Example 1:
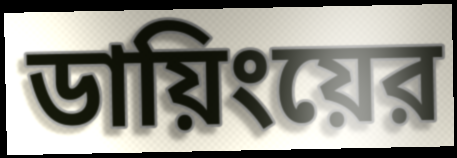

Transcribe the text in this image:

ডায়িংয়ের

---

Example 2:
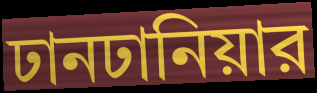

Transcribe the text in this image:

ঢানঢানিয়ার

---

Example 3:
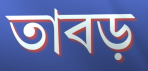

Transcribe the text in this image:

তাবড়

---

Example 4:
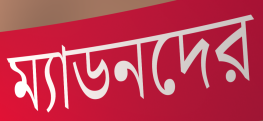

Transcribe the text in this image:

ম্যাডনদের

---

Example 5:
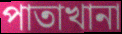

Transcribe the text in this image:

পাতাখানা